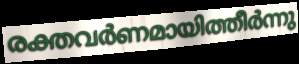
രക്തവർണമായിത്തീർന്നു